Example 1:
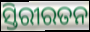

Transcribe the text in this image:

ସ୍ତିରୀରତନ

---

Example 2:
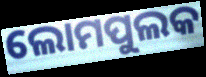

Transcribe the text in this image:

ଲୋମପୁଲକ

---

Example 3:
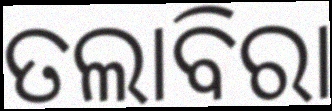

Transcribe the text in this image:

ତଲାବିରା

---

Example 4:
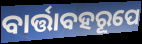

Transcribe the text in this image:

ବାର୍ତ୍ତାବହରୂପେ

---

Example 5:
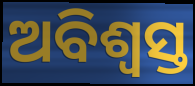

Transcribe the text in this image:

ଅବିଶ୍ୱସ୍ତ